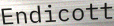
Endicott